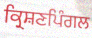
ਕ੍ਰਿਸ਼ਣਪਿੰਗਲ